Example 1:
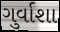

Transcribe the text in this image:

ગુર્વાશા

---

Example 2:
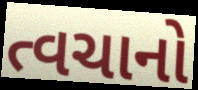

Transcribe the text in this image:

ત્વચાનો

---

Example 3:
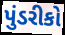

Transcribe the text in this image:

પુંડરીકો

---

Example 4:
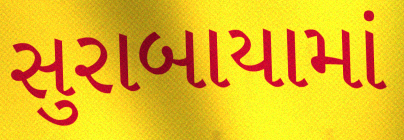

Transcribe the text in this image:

સુરાબાયામાં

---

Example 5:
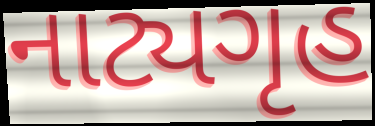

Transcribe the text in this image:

નાટ્યગૃહ